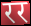
रर